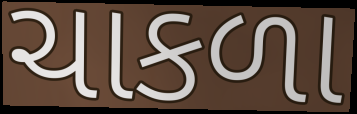
ચાકળા